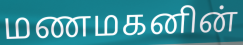
மணமகனின்